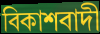
বিকাশবাদী